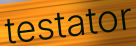
testator